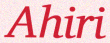
Ahiri